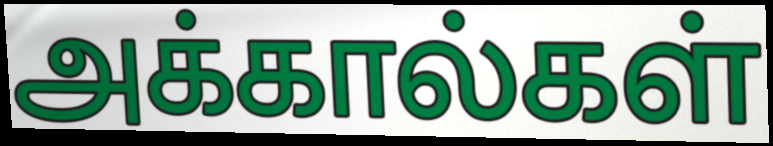
அக்கால்கள்